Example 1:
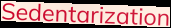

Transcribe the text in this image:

Sedentarization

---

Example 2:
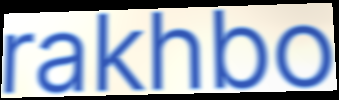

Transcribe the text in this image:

rakhbo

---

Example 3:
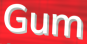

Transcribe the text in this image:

Gum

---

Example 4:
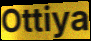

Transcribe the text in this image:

Ottiya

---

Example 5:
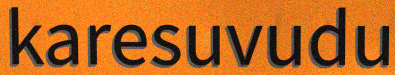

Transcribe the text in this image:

karesuvudu